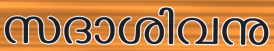
സദാശിവനു